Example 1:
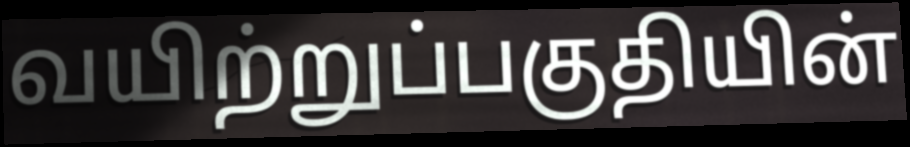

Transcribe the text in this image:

வயிற்றுப்பகுதியின்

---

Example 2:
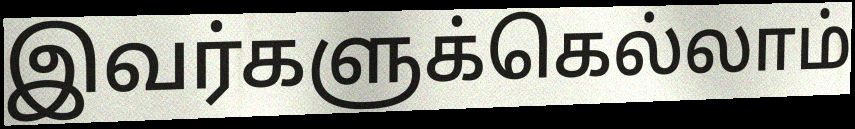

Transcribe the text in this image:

இவர்களுக்கெல்லாம்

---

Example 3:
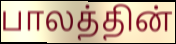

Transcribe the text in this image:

பாலத்தின்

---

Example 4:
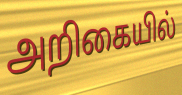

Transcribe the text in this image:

அறிகையில்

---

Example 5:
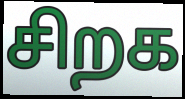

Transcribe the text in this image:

சிறக